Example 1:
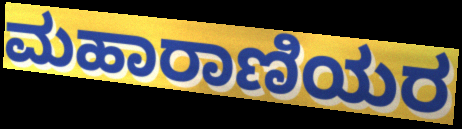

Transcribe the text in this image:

ಮಹಾರಾಣಿಯರ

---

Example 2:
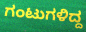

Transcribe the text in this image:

ಗಂಟುಗಳಿದ್ದ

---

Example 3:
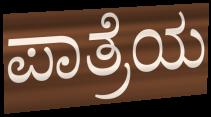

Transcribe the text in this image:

ಪಾತ್ರೆಯ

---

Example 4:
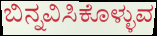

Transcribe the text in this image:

ಬಿನ್ನವಿಸಿಕೊಳ್ಳುವ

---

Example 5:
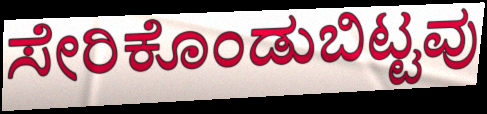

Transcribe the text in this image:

ಸೇರಿಕೊಂಡುಬಿಟ್ಟವು